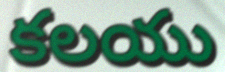
కలయు